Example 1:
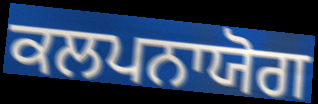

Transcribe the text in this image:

ਕਲਪਨਾਯੋਗ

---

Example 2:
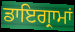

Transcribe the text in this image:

ਡਾਇਗ੍ਰਾਮਾਂ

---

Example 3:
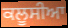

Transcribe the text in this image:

ਕਲੂਸੀਆ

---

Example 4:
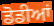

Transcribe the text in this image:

ਡੋਡੀਆਂ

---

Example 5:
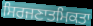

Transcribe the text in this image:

ਸਿਰਜਣਾਤਮਿਕਤਾ